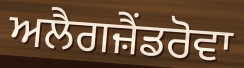
ਅਲੈਗਜ਼ੈਂਡਰੋਵਾ